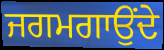
ਜਗਮਗਾਉਂਦੇ